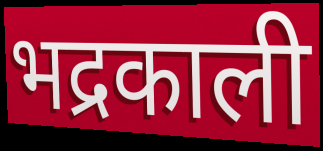
भद्रकाली